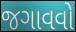
જગાવવો